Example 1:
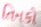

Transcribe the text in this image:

તિનકો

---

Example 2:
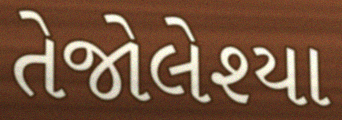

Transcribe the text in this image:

તેજોલેશ્યા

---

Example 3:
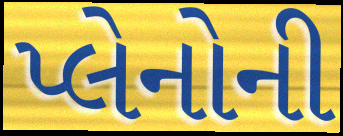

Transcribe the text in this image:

પ્લેનોની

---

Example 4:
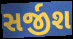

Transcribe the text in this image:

સર્જીશ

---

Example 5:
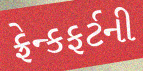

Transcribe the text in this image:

ફ્રેન્કફર્ટની